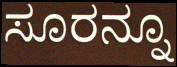
ಸೂರನ್ನೂ